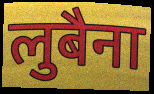
लुबैना